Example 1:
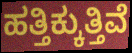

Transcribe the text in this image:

ಹತ್ತಿಕ್ಕುತ್ತಿವೆ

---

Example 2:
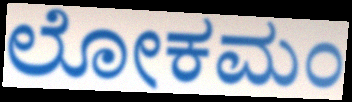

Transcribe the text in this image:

ಲೋಕಮಂ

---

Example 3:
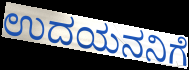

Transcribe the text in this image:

ಉದಯನನಿಗೆ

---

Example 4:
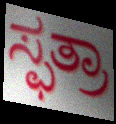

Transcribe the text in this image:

ಸ್ಫತ್ರಾ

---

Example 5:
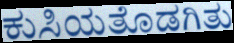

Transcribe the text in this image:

ಕುಸಿಯತೊಡಗಿತು